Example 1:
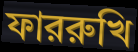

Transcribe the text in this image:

ফাররুখি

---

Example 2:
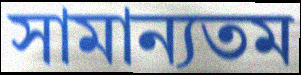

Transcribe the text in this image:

সামান্যতম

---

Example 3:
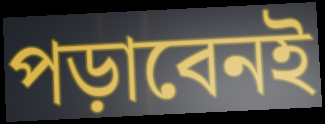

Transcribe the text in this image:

পড়াবেনই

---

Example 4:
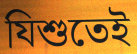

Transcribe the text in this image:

যিশুতেই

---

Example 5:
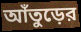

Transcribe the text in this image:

আঁতুড়ের